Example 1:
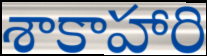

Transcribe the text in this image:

శాకాహారి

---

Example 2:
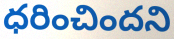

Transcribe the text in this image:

ధరించిందని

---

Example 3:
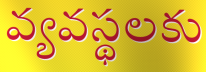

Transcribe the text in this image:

వ్యవస్థలకు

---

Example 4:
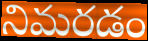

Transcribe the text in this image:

నిమరడం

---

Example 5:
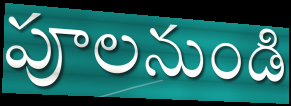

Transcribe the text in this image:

పూలనుండి